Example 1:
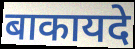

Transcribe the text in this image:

बाकायदे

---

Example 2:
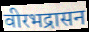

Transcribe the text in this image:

वीरभद्रासन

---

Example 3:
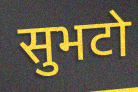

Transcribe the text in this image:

सुभटो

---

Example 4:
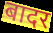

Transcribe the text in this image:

बादर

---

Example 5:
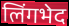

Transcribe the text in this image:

लिंगभेद